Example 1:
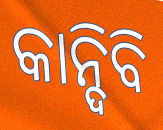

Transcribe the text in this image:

କାନ୍ଦିବି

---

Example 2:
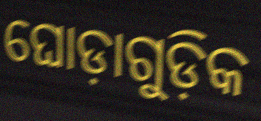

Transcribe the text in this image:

ଘୋଡ଼ାଗୁଡ଼ିକ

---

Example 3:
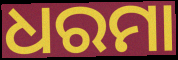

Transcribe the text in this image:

ଧରମା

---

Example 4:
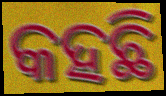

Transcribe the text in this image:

କହଛି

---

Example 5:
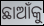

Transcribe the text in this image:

ଛାଆଁକୁ